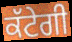
ਕੱਟੇਗੀ